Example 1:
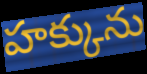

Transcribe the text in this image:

హక్కును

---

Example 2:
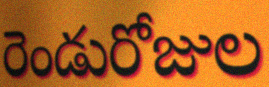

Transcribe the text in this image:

రెండురోజుల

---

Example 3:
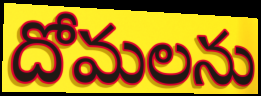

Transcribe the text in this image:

దోమలను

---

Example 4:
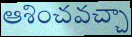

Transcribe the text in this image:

ఆశించవచ్చా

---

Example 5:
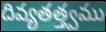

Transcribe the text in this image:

దివ్యతత్త్వము